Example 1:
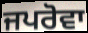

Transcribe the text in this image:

ਜਪਰੋਵਾ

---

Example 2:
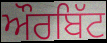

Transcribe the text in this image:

ਔਰਬਿੱਟ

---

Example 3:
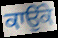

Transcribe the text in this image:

ਕਾਉਂਕੇ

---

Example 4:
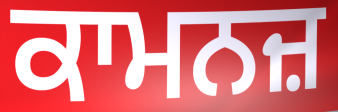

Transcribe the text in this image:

ਕਾਮਨਜ਼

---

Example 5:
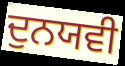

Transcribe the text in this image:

ਦੁਨਯਵੀ